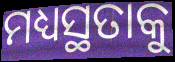
ମଧ୍ୟସ୍ଥତାକୁ